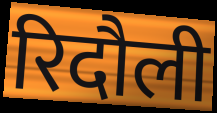
रिदौली